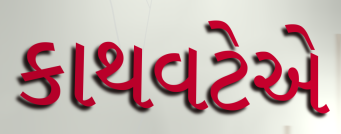
કાથવટેએ